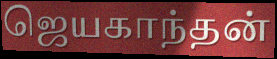
ஜெயகாந்தன்